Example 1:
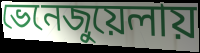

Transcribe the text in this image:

ভেনেজুয়েলায়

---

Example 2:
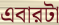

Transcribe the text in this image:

এবারটা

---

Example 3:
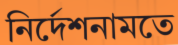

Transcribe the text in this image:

নির্দেশনামতে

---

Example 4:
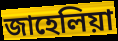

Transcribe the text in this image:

জাহেলিয়া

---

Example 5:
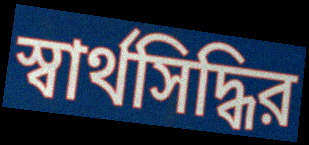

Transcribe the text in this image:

স্বার্থসিদ্ধির